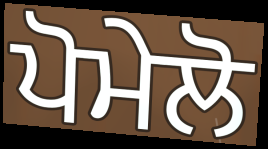
ਪੋਮੇਲੋ